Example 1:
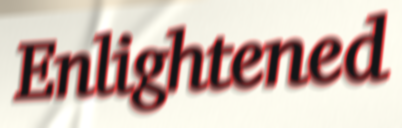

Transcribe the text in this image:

Enlightened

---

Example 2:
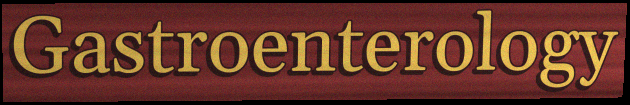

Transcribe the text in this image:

Gastroenterology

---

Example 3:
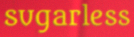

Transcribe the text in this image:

sugarless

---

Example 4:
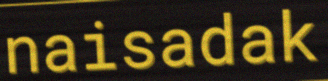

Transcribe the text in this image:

naisadak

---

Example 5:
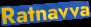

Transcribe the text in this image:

Ratnavva